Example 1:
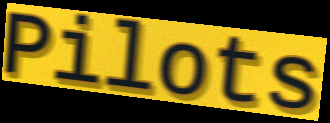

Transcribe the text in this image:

Pilots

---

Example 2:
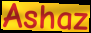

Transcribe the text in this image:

Ashaz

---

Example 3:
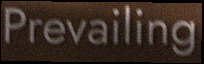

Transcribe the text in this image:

Prevailing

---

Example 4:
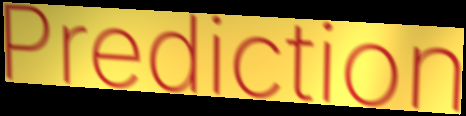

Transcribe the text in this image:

Prediction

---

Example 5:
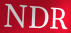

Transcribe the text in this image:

NDR